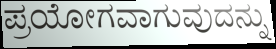
ಪ್ರಯೋಗವಾಗುವುದನ್ನು